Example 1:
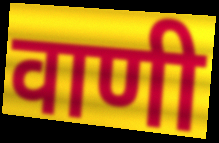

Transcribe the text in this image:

वाणी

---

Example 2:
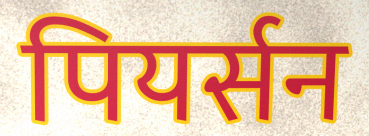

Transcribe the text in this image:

पियर्सन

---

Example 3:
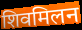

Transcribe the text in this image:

शिवमिलन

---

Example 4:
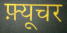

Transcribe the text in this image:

फ़्यूचर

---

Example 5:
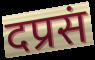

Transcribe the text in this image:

दप्रसं